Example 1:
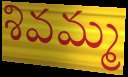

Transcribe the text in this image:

శివమ్మ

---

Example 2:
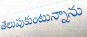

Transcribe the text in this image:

తెలుపుకుంటున్నాను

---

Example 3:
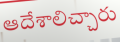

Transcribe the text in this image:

ఆదేశాలిచ్చారు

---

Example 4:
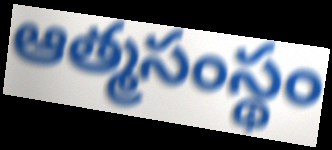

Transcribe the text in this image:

ఆత్మసంస్థం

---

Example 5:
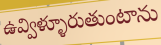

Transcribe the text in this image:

ఉవ్విళ్ళూరుతుంటాను